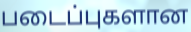
படைப்புகளான